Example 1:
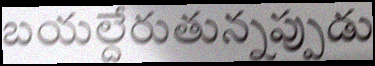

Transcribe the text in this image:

బయల్దేరుతున్నప్పుడు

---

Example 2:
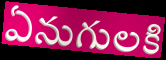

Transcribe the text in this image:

ఏనుగులకి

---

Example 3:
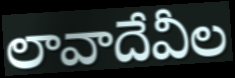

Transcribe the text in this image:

లావాదేవీల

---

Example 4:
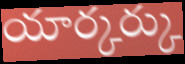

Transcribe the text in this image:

యార్కర్కు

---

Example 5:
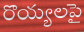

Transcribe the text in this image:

రొయ్యలపై